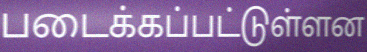
படைக்கப்பட்டுள்ளன